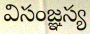
విసంజ్ఞస్య